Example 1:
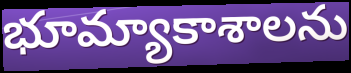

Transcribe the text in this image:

భూమ్యాకాశాలను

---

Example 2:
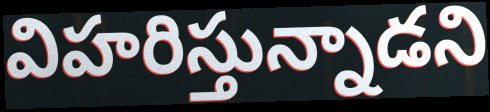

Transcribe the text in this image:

విహరిస్తున్నాడని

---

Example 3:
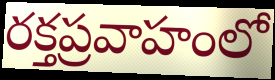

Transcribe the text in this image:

రక్తప్రవాహంలో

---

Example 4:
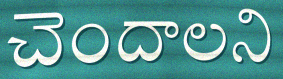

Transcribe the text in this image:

చెందాలని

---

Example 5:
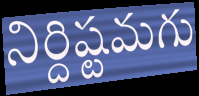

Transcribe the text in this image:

నిర్దిష్టమగు